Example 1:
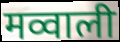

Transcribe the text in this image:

मव्वाली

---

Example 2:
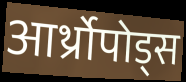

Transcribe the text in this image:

आर्थ्रोपोड्स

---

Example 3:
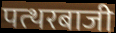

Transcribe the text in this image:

पत्‍थरबाजी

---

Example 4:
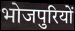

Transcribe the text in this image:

भोजपुरियों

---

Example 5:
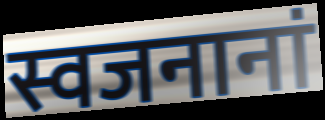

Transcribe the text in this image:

स्वजनानां